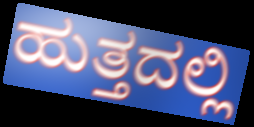
ಹುತ್ತದಲ್ಲಿ